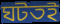
ঘটতই